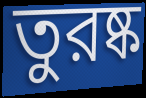
তুরষ্ক